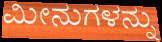
ಮೀನುಗಳನ್ನು